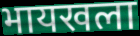
भायखला